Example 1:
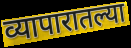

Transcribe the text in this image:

व्यापारातल्या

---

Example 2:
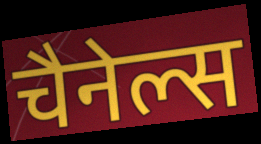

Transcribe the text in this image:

चैनेल्स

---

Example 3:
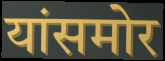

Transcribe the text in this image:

यांसमोर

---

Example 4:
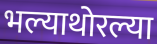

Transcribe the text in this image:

भल्याथोरल्या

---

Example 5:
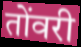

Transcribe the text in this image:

तोंवरी